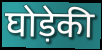
घोड़ेकी